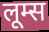
लूम्स